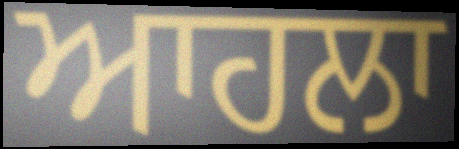
ਆਹਲਾ